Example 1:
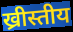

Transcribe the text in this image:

ख्रीस्तीय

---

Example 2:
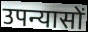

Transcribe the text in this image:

उपन्यासों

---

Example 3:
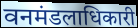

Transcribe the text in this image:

वनमंडलाधिकारी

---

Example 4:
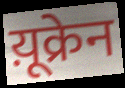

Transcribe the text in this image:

य़ूक्रेन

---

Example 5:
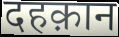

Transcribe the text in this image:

दहक़ान